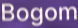
Bogom